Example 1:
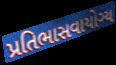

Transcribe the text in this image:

પ્રતિભાસવાયોગ્ય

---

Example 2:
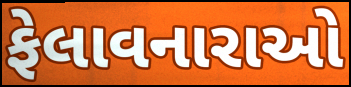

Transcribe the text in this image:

ફેલાવનારાઓ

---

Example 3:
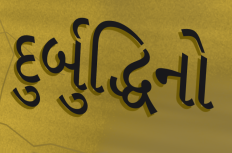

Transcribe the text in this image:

દુર્બુદ્ધિનો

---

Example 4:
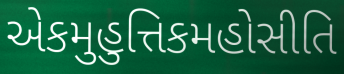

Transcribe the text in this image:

એકમુહુત્તિકમહોસીતિ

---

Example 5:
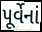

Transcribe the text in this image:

પૂર્વેનાં